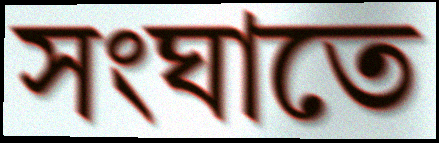
সংঘাতে